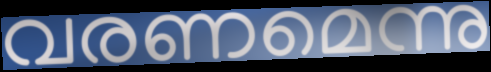
വരണമെന്നു